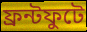
ফ্রন্টফুটে